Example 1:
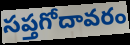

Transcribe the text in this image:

సప్తగోదావరం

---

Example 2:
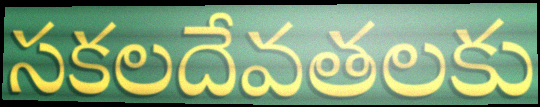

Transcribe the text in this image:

సకలదేవతలకు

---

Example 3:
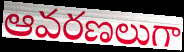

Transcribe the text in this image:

ఆవరణలుగా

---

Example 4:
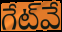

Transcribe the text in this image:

గేట్‌వే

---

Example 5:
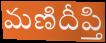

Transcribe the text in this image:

మణిదీప్తి